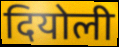
दियोली